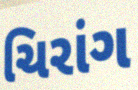
ચિરાંગ